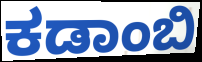
ಕಡಾಂಬಿ